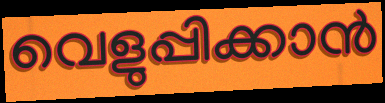
വെളുപ്പിക്കാൻ